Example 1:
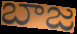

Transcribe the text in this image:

బాజ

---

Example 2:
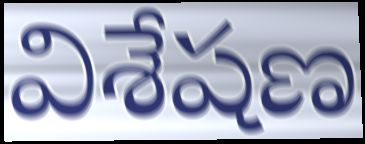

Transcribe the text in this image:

విశేషణ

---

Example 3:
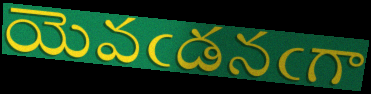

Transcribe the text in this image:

యెవఁడనఁగా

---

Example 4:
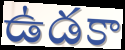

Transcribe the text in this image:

ఉడకా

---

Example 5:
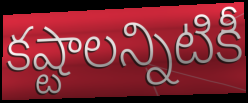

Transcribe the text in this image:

కష్టాలన్నిటికీ